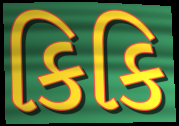
કિકિ